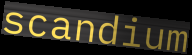
scandium